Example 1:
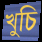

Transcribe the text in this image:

খুচি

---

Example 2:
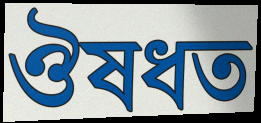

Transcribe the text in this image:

ঔষধত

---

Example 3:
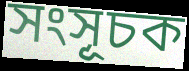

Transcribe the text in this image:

সংসূচক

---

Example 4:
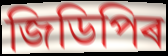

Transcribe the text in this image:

জিডিপিৰ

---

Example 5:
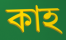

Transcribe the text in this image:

কাহ